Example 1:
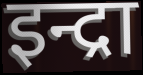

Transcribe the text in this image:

इन्द्रा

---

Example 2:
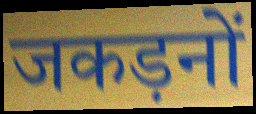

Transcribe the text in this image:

जकड़नों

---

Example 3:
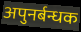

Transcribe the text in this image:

अपुनर्बन्धक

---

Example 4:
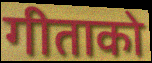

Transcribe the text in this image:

गीताको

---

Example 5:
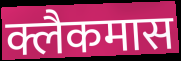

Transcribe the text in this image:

क्लैकमास